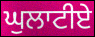
ਘੁਲਾਟੀਏ